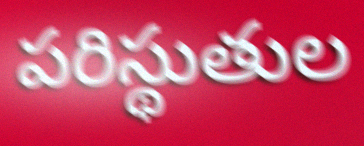
పరిస్థుతుల